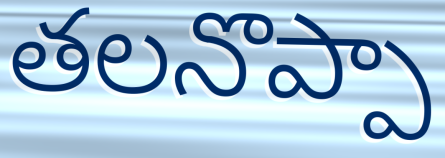
తలనొప్పా